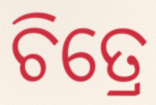
ଚିତ୍ରେ